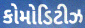
કોમોડિટીઝ